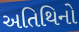
અતિથિનો